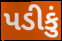
પડીકું